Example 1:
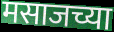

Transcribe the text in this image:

मसाजच्या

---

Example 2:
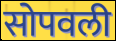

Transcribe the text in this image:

सोपवली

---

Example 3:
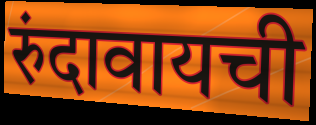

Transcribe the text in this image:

रुंदावायची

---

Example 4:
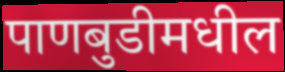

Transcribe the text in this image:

पाणबुडीमधील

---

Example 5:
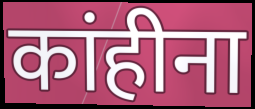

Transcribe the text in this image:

कांहीना